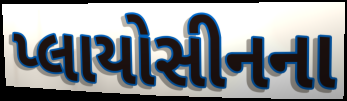
પ્લાયોસીનના